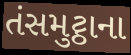
તંસમુટ્ઠાના